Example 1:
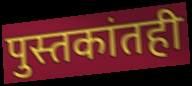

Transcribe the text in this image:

पुस्तकांतही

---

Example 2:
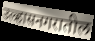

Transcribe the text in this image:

उल्हासनगरातील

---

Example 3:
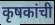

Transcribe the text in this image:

कृषकांची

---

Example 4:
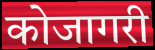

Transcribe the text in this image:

कोजागरी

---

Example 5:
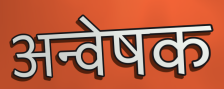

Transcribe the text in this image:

अन्वेषक